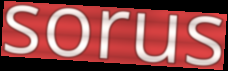
sorus